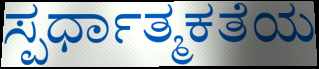
ಸ್ಪರ್ಧಾತ್ಮಕತೆಯ